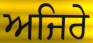
ਅਜਿਰੇ